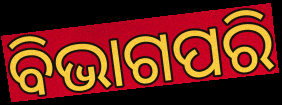
ବିଭାଗପରି